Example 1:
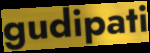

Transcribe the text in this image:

gudipati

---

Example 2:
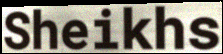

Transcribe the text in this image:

Sheikhs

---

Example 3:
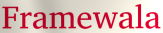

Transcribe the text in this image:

Framewala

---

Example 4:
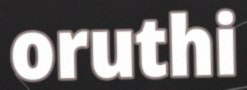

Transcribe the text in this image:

oruthi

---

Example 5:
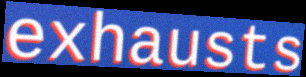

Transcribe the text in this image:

exhausts